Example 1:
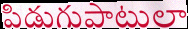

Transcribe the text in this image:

పిడుగుపాటులా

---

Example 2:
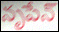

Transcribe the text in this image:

నృపేన్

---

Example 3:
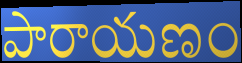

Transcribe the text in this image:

పారాయణం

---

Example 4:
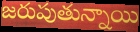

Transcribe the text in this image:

జరుపుతున్నాయి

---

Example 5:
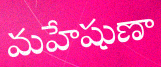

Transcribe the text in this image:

మహేషుణా